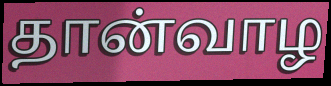
தான்வாழ